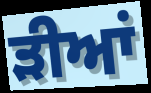
ੜੀਆਂ